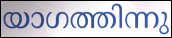
യാഗത്തിന്നു